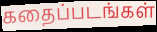
கதைப்படங்கள்